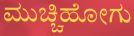
ಮುಚ್ಚಿಹೋಗು